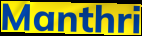
Manthri